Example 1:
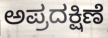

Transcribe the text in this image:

ಅಪ್ರದಕ್ಷಿಣೆ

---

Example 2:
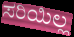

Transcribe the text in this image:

ಸರಿಯಿಲ್ಲ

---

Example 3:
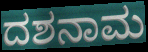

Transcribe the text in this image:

ದಶನಾಮ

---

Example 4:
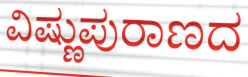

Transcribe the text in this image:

ವಿಷ್ಣುಪುರಾಣದ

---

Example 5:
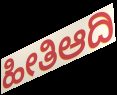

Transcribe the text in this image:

ಹೀತಿಆದಿ